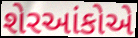
શેરઆંકોએ